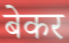
बेकर